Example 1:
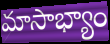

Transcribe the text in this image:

మాసాభ్యాం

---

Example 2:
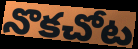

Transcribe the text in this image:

నొకచోట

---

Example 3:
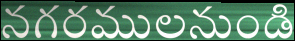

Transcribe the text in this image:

నగరములనుండి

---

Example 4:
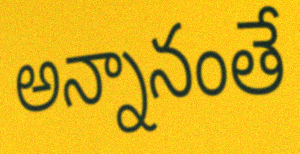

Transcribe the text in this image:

అన్నానంతే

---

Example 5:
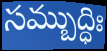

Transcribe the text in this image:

సమ్బుద్ధిః